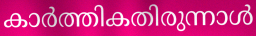
കാർത്തികതിരുന്നാൾ